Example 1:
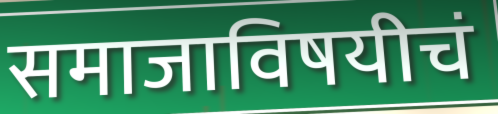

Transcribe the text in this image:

समाजाविषयीचं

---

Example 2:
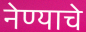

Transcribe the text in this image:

नेण्याचे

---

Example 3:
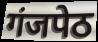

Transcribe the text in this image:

गंजपेठ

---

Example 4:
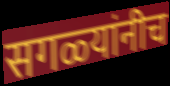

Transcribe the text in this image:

सगळ्यांनीच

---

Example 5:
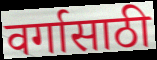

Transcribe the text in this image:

वर्गासाठी